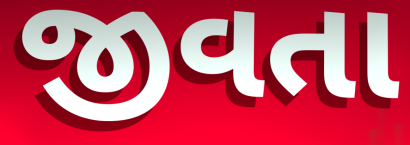
જીવતા